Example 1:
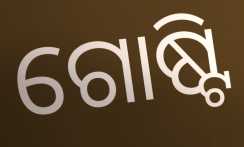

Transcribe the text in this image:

ଗୋଷ୍ଟି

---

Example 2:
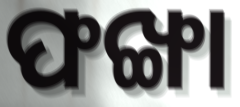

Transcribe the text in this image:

ଫଙ୍ଖା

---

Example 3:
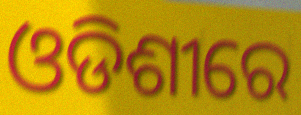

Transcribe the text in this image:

ଓଡିଶୀରେ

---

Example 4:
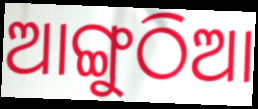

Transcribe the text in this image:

ଆଙ୍ଗୁଠିଆ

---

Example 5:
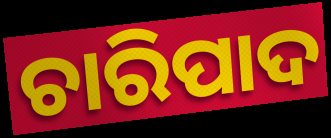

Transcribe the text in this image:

ଚାରିପାଦ